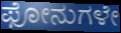
ಫೋನುಗಳೇ